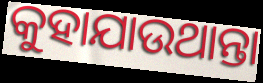
କୁହାଯାଉଥାନ୍ତା